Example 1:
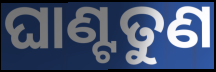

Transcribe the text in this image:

ଘାଣ୍ଟତୁଣ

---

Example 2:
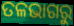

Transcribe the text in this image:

ତଳଭାଗରୁ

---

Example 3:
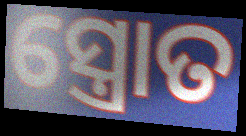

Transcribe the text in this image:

ସ୍ତ୍ରୋତ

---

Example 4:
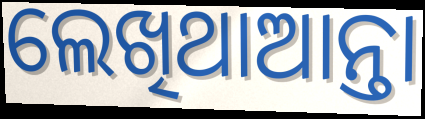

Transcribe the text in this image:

ଲେଖିଥାଆନ୍ତା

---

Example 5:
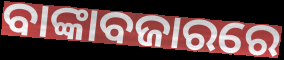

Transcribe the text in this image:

ବାଙ୍କାବଜାରରେ